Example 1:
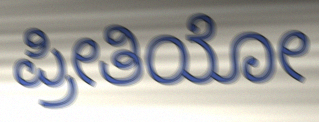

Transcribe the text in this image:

ಪ್ರೀತಿಯೋ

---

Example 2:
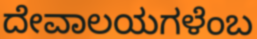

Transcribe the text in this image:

ದೇವಾಲಯಗಳೆಂಬ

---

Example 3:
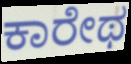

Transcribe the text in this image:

ಕಾರೇಥ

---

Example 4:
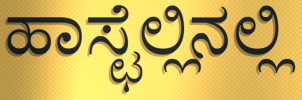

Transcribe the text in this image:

ಹಾಸ್ಟೆಲ್ಲಿನಲ್ಲಿ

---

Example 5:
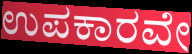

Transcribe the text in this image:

ಉಪಕಾರವೇ